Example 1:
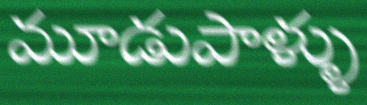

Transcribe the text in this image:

మూడుపాళ్ళు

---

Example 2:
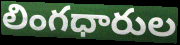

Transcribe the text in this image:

లింగధారుల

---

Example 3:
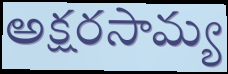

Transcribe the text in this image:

అక్షరసామ్య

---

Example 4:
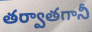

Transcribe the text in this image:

తర్వాతగానీ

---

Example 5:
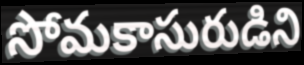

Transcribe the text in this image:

సోమకాసురుడిని